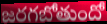
జరగబోతుందో